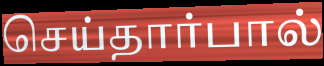
செய்தார்பால்